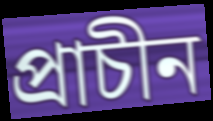
প্ৰাচীন